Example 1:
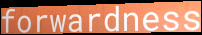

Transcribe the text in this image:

forwardness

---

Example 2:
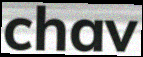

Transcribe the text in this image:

chav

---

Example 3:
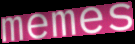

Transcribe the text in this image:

memes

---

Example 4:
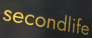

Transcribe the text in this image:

secondlife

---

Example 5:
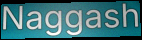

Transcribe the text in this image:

Naggash